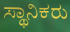
ಸ್ಥಾನಿಕರು